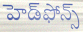
హెడ్‌ఫోన్స్